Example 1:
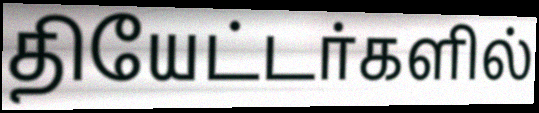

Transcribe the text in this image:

தியேட்டர்களில்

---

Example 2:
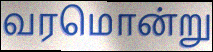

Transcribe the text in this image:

வரமொன்று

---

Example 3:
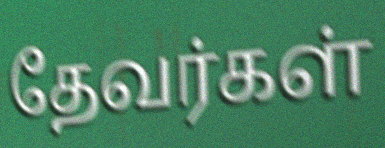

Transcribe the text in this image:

தேவர்கள்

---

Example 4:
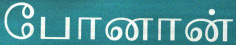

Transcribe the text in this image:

போனான்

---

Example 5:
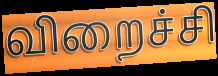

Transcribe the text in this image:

விறைச்சி